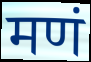
मणं